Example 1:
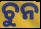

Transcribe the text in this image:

ଚୁନ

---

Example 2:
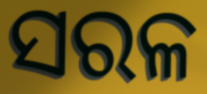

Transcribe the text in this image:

ସରଳ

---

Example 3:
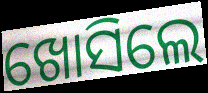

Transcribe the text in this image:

ଖୋସିଲେ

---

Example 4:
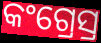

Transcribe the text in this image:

କଂଗ୍ରେସ୍ର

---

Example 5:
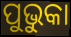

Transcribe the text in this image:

ପୁଭୁକା